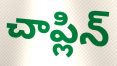
చాప్లిన్